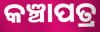
କଞ୍ଚାପତ୍ର